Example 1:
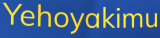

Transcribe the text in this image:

Yehoyakimu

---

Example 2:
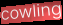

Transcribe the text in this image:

cowling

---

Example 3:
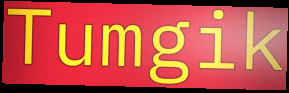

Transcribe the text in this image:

Tumgik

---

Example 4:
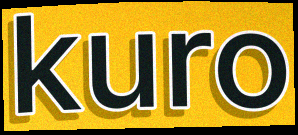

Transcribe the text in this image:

kuro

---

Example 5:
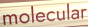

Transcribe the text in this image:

molecular